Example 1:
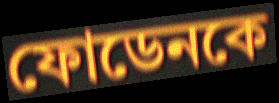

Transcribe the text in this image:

ফোডেনকে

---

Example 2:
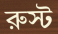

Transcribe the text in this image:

রুস্ট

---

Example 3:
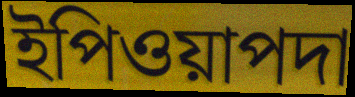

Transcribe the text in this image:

ইপিওয়াপদা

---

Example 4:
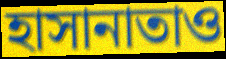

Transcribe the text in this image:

হাসানাতাও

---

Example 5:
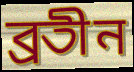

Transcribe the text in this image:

ব্রতীন